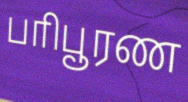
பரிபூரண